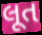
લૂત